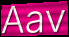
Aav